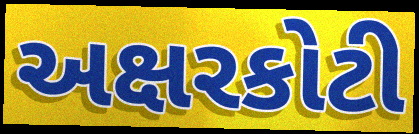
અક્ષરકોટી